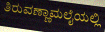
ತಿರುವಣ್ಣಾಮಲೈಯಲ್ಲಿ